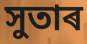
সুতাৰ